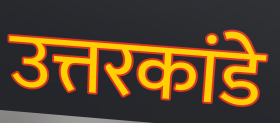
उत्तरकांडे